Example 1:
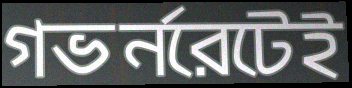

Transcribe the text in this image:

গভর্নরেটেই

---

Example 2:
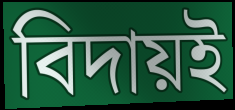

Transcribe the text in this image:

বিদায়ই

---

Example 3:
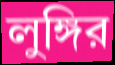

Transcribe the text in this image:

লুঙ্গির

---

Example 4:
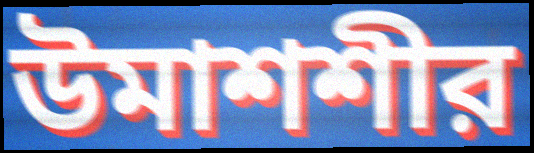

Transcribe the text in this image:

উমাশশীর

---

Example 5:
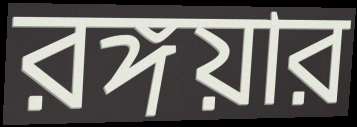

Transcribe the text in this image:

রঙ্গয়ার